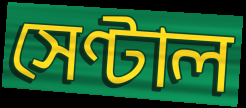
সেণ্টাল